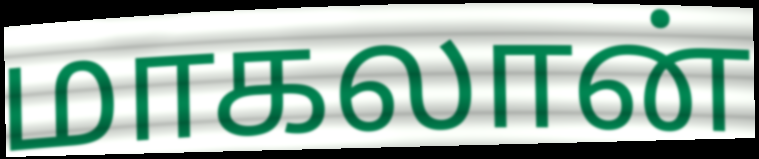
மாகலான்